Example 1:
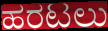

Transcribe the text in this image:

ಹರಟಲು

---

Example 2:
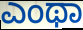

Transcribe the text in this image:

ಎಂಥಾ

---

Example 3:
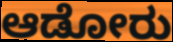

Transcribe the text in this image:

ಆಡೋರು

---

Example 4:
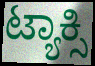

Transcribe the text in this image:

ಟ್ಯಾಕ್ಸಿ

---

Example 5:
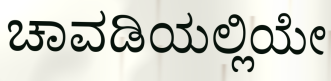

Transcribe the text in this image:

ಚಾವಡಿಯಲ್ಲಿಯೇ